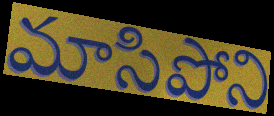
మాసిపోని